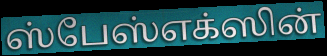
ஸ்பேஸ்எக்ஸின்